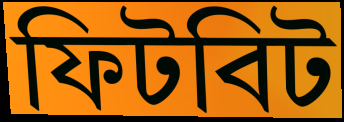
ফিটবিট